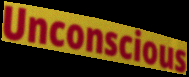
Unconscious